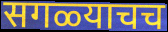
सगळ्याचच